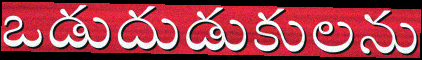
ఒడుదుడుకులను